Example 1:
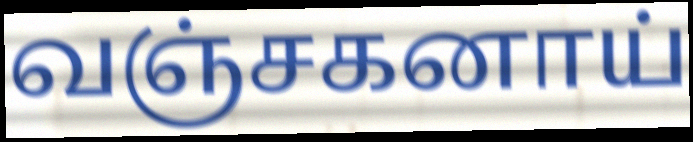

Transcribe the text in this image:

வஞ்சகனாய்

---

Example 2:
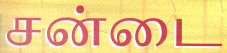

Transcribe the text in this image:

சன்டை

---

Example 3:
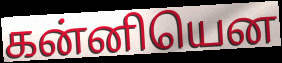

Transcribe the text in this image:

கன்னியென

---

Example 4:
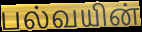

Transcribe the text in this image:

பல்வயின்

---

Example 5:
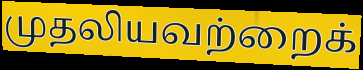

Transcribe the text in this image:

முதலியவற்றைக்